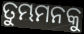
ତୁମ୍ଭମନକୁ